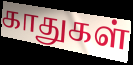
காதுகள்